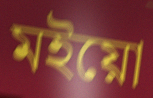
মইয়ো